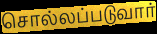
சொல்லப்படுவார்